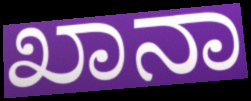
ಖಾನಾ